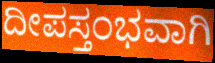
ದೀಪಸ್ತಂಭವಾಗಿ